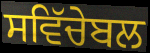
ਸਵਿੱਚੇਬਲ